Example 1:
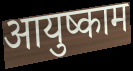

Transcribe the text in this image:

आयुष्काम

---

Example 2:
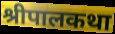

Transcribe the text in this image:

श्रीपालकथा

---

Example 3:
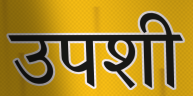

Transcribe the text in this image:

उपशी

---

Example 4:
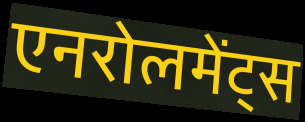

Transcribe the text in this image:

एनरोलमेंट्स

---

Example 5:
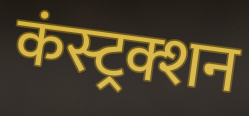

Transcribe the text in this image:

कंस्‍ट्रक्‍शन